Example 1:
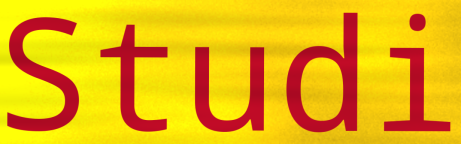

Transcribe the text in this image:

Studi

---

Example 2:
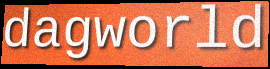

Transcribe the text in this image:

dagworld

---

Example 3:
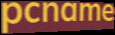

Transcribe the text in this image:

pcname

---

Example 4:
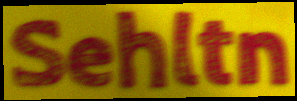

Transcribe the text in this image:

Sehltn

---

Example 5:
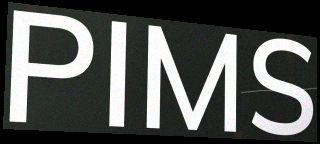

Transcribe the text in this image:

PIMS